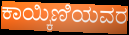
ಕಾಯ್ಕಿಣಿಯವರ